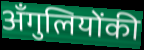
अँगुलियोंकी